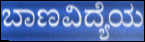
ಬಾಣವಿದ್ಯೆಯ